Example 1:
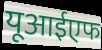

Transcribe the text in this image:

यूआईएफ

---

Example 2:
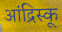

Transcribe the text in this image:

आंद्रिस्कू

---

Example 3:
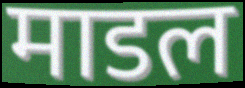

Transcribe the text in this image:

माडल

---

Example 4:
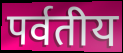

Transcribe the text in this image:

पर्वतीय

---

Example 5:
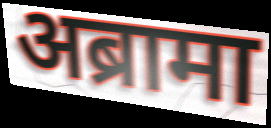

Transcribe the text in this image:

अब्रामा